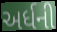
અર્ધની